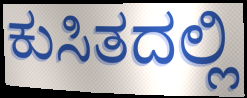
ಕುಸಿತದಲ್ಲಿ